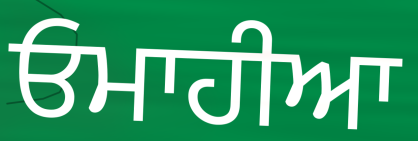
ਓਮਾਹੀਆ